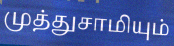
முத்துசாமியும்